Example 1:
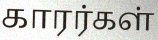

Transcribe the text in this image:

காரர்கள்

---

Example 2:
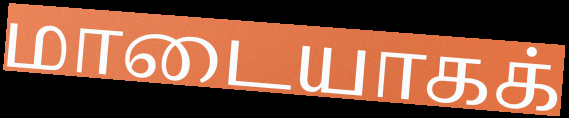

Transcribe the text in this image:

மாடையாகக்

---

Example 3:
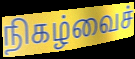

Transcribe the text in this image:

நிகழ்வைச்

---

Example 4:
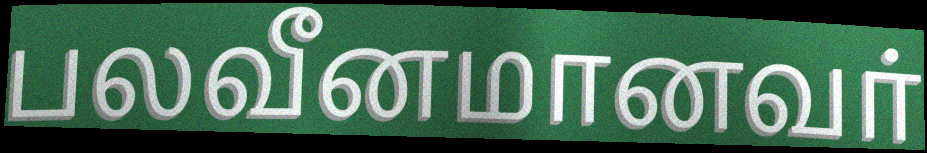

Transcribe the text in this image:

பலவீனமானவர்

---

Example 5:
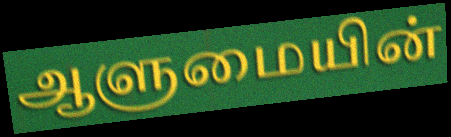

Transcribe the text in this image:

ஆளுமையின்